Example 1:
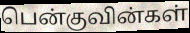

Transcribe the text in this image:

பென்குவின்கள்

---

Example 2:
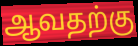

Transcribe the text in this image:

ஆவதற்கு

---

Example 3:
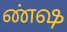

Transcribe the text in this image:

ண்ஷ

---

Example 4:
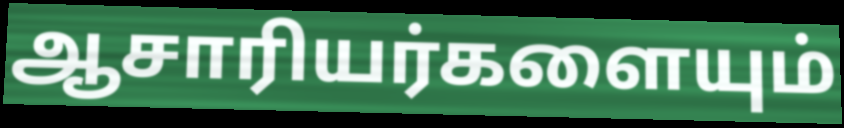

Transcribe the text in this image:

ஆசாரியர்களையும்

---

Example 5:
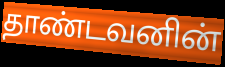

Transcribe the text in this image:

தாண்டவனின்